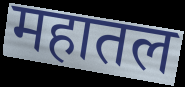
महातल